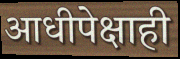
आधीपेक्षाही